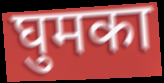
घुमका